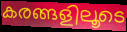
കരങ്ങളിലൂടെ